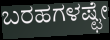
ಬರಹಗಳಷ್ಟೇ